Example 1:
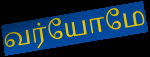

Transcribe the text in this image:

வர்யோமே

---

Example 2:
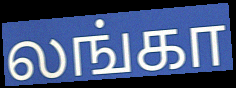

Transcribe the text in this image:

லங்கா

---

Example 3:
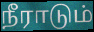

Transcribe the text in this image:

நீராடும்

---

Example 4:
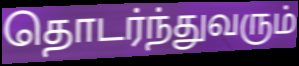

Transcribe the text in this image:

தொடர்ந்துவரும்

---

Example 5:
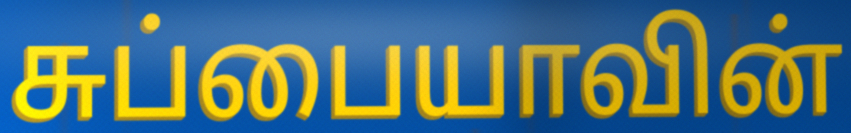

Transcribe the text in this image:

சுப்பையாவின்